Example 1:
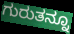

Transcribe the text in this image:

ಗುರುತನ್ನೂ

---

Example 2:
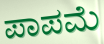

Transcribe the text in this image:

ಪಾಪಮೆ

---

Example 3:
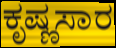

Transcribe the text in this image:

ಕೃಷ್ಣಸಾರ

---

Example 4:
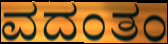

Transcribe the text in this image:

ವದಂತಂ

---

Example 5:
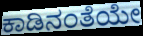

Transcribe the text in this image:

ಕಾಡಿನಂತೆಯೇ